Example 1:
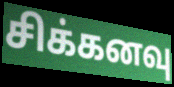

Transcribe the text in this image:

சிக்கனவு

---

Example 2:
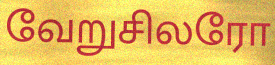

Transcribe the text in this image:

வேறுசிலரோ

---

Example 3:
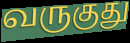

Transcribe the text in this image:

வருகுது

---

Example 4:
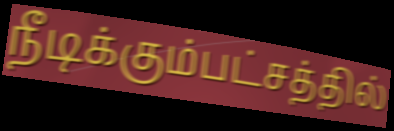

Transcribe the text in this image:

நீடிக்கும்பட்சத்தில்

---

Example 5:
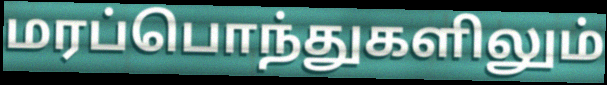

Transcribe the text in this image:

மரப்பொந்துகளிலும்